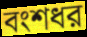
বংশধর